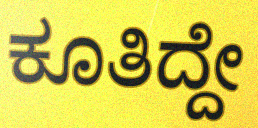
ಕೂತಿದ್ದೇ